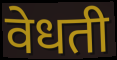
वेधती